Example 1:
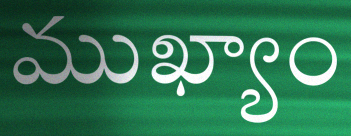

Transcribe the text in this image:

ముఖ్యాం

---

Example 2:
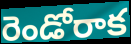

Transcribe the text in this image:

రెండోరాక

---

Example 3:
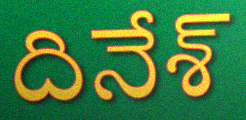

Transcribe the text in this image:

దినేశ్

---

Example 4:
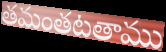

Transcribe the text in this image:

తమంతటతాము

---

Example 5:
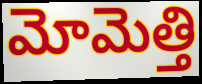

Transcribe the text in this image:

మోమెత్తి